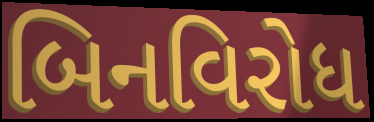
બિનવિરોધ